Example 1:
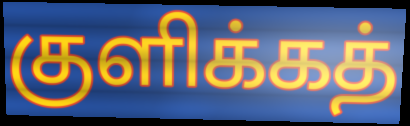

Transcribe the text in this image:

குளிக்கத்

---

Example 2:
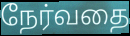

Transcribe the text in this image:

நேர்வதை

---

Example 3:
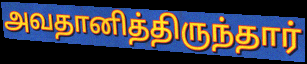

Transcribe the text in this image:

அவதானித்திருந்தார்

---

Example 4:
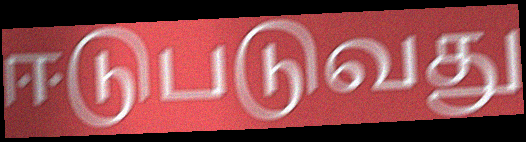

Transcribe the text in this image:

ஈடுபடுவது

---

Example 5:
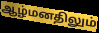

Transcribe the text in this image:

ஆழ்மனதிலும்